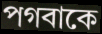
পগবাকে